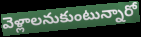
వెళ్లాలనుకుంటున్నారో